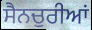
ਸੈਨਚੁਰੀਆਂ